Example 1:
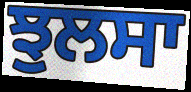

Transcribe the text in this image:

ਝੁਲਸਾ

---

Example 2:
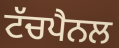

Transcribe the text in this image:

ਟੱਚਪੈਨਲ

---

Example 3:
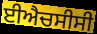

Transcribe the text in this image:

ਈਐਚਸੀਸੀ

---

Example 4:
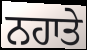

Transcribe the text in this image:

ਨਹਾਤੇ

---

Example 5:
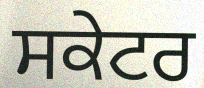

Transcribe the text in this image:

ਸਕੇਟਰ